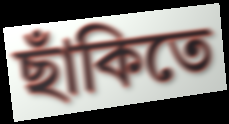
ছাঁকিতে